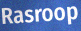
Rasroop